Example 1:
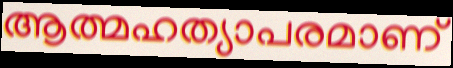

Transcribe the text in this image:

ആത്മഹത്യാപരമാണ്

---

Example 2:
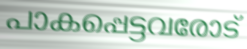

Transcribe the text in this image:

പാകപ്പെട്ടവരോട്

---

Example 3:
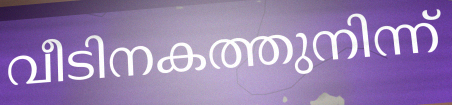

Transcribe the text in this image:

വീടിനകത്തുനിന്ന്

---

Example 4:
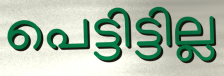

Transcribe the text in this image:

പെട്ടിട്ടില്ല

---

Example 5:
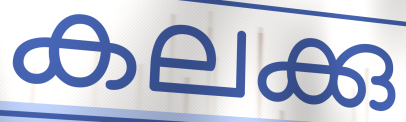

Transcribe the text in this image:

കലക്കു